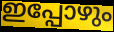
ഇപ്പോഴും